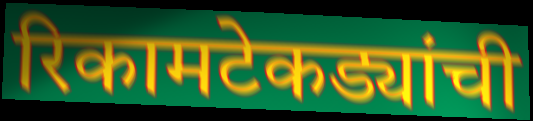
रिकामटेकड्यांची